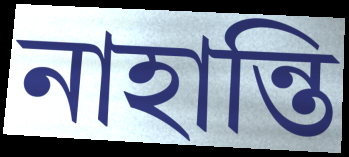
নাহান্তি